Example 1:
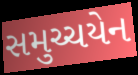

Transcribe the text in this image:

સમુચ્ચયેન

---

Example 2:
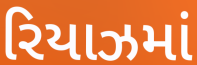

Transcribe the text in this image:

રિયાઝમાં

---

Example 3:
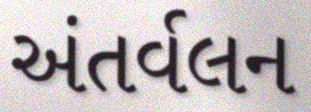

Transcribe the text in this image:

અંતર્વલન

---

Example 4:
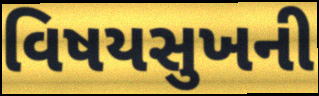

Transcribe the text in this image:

વિષયસુખની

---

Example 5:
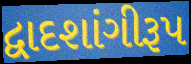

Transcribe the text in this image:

દ્વાદશાંગીરૂપ